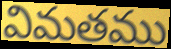
విమతము